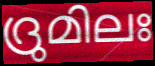
ദ്രുമിലഃ